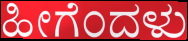
ಹೀಗೆಂದಳು